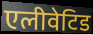
एलीवेटिड